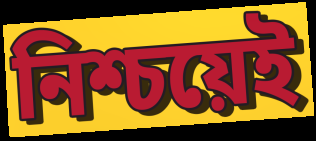
নিশ্চয়েই